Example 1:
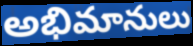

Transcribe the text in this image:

అభిమానులు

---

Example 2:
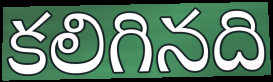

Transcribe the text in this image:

కలిగినది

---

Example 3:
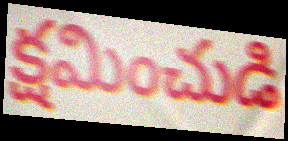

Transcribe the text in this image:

క్షమించుడి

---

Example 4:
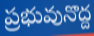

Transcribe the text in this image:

ప్రభువునొద్ద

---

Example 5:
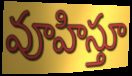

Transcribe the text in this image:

వూహిస్తూ